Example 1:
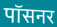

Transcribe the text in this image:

पॉसनर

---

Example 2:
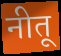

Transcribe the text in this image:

नीतू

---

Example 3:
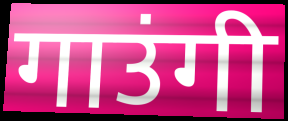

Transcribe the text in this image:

गाउंगी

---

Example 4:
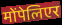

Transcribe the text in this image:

मोंपेलिएर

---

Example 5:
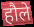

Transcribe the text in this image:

हौले